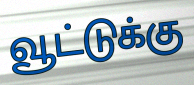
வூட்டுக்கு